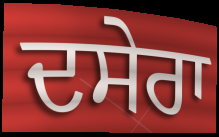
ਦਸੇਰਾ